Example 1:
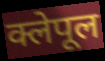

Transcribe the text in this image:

क्लेपूल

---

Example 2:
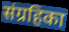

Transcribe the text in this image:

संग्रहिका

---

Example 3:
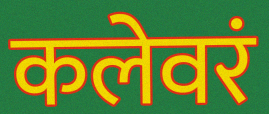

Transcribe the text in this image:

कलेवरं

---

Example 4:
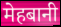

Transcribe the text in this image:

मेहबानी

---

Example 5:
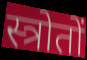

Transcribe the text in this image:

स्त्रोतों